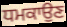
ਧਮਕਾਉਣ